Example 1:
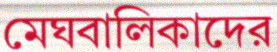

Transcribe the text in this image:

মেঘবালিকাদের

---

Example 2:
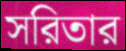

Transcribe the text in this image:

সরিতার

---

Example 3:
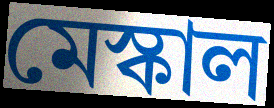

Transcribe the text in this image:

মেস্কাল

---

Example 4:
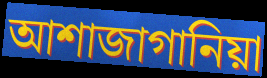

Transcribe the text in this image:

আশাজাগানিয়া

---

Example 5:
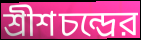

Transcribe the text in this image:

শ্রীশচন্দ্রের